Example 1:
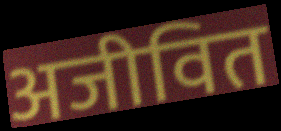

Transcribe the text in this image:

अजीवित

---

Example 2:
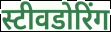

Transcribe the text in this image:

स्टीवडोरिंग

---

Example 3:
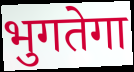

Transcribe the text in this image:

भुगतेगा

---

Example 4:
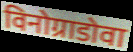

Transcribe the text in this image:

विनोग्राडोवा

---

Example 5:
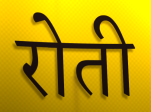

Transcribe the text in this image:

रोती